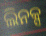
ଲିନକ୍ସ